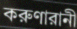
করুণারানী